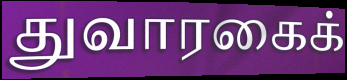
துவாரகைக்